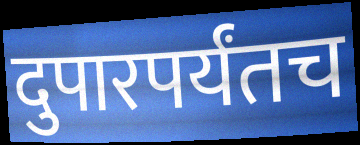
दुपारपर्यंतच